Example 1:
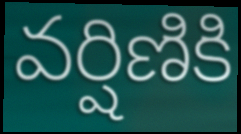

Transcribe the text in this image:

వర్షిణికి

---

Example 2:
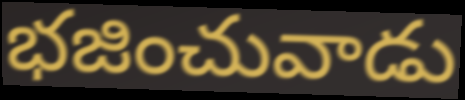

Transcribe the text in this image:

భజించువాడు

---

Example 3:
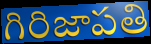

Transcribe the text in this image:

గిరిజాపతి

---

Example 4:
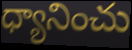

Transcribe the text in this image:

ధ్యానించు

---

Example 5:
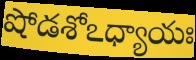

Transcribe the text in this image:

షోడశోఽధ్యాయః